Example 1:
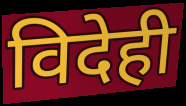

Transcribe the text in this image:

विदेही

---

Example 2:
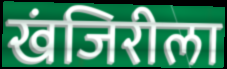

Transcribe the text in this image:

खंजिरीला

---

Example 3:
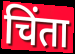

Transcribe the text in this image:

चिंता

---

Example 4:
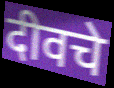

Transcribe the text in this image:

दीवचे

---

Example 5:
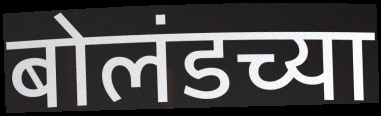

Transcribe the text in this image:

बोलंडच्या